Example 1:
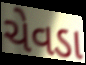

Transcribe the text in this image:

ચેવડા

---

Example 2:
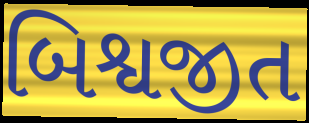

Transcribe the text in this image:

બિશ્વજીત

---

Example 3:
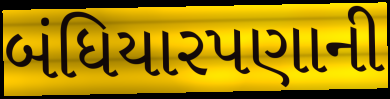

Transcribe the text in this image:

બંધિયારપણાની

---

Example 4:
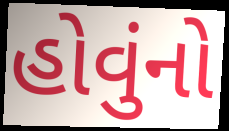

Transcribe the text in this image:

હોવુંનો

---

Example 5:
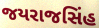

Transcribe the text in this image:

જયરાજસિંહ